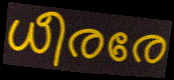
ധീരരേ